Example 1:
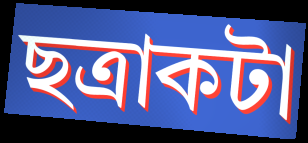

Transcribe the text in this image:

ছত্রাকটা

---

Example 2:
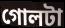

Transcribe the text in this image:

গোলটা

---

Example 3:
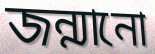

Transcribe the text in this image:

জন্মানো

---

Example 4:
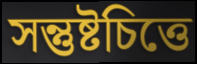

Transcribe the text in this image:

সন্তুষ্টচিত্তে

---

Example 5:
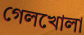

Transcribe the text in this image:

গেলখোলা